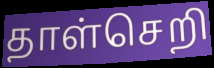
தாள்செறி